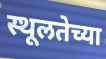
स्थूलतेच्या